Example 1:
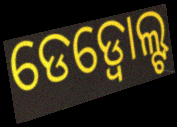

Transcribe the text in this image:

ଡେଡ୍ବୋଲ୍ଟ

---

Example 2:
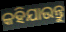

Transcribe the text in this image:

କହିଯାଉନ୍ତୁ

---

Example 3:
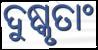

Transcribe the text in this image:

ଦୁଷ୍କୃତାଂ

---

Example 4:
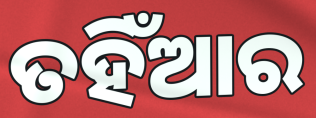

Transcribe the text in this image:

ତହିଁଆର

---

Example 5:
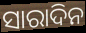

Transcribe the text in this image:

ସାରାଦିନ